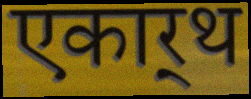
एकार्थ